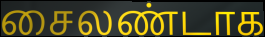
சைலண்டாக